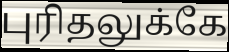
புரிதலுக்கே